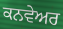
ਕਨਵੇਅਰ